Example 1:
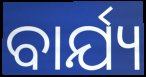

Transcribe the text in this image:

ବାର୍ଯ୍ୟ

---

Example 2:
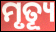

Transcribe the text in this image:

ମୃତ୍ୟୂ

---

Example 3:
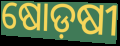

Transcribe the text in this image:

ଷୋଡ଼ଷୀ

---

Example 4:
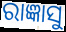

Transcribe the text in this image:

ରାଜ୍ଞାସୁ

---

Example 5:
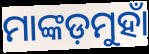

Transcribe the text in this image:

ମାଙ୍କଡ଼ମୁହାଁ